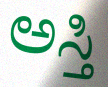
ಅಸ್ತಿ